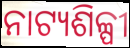
ନାଟ୍ୟଶିଳ୍ପୀ